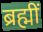
ब्रह्मीं